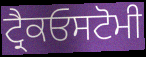
ਟ੍ਰੈਕਓਸਟੋਮੀ